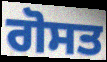
ਗੋਸਤ